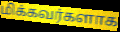
மிக்கவர்களாக